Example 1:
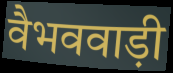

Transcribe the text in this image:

वैभववाड़ी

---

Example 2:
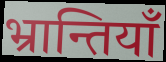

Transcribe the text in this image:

भ्रान्तियाँ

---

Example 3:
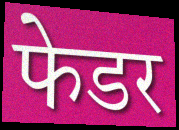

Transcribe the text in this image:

फेडर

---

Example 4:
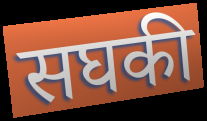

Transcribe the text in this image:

सघकी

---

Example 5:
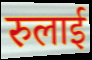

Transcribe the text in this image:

रुलाई